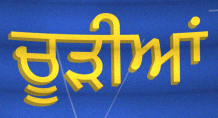
ਚੂੜੀਆਂ